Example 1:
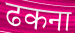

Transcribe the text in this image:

ढकना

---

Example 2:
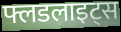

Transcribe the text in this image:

फ्लडलाइट्स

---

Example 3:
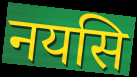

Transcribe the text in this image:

नयसि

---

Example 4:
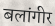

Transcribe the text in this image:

बलांगीर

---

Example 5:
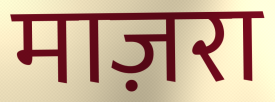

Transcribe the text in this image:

माज़रा